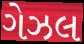
ગેઝલ